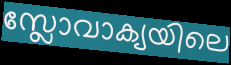
സ്ലോവാക്യയിലെ